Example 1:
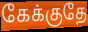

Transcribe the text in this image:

கேக்குதே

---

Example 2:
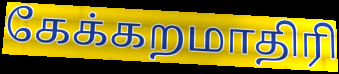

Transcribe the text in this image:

கேக்கறமாதிரி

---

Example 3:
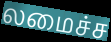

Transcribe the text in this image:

லமைச்ச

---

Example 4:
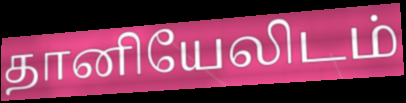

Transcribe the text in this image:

தானியேலிடம்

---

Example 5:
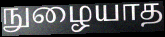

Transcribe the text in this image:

நுழையாத